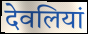
देवलियां